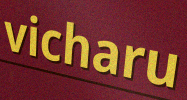
vicharu